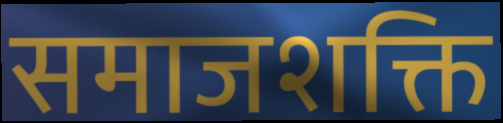
समाजशक्ति